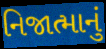
નિજાત્માનું